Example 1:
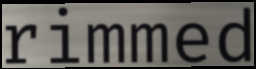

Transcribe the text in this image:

rimmed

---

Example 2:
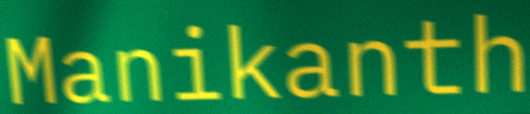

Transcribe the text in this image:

Manikanth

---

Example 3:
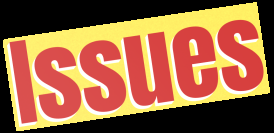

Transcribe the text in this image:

Issues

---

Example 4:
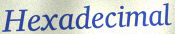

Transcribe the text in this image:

Hexadecimal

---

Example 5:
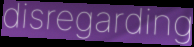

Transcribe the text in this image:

disregarding